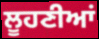
ਲੂਹਣੀਆਂ